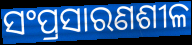
ସଂପ୍ରସାରଣଶୀଳ